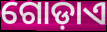
ଗୋଡ଼ାଏ